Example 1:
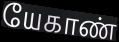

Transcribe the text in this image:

யேகாண்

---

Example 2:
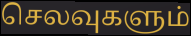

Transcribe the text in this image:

செலவுகளும்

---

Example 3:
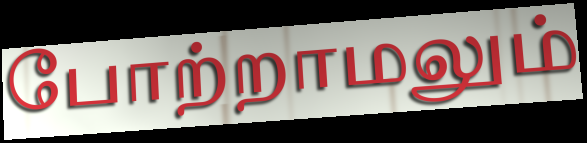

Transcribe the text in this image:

போற்றாமலும்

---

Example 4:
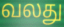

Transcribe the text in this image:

வலது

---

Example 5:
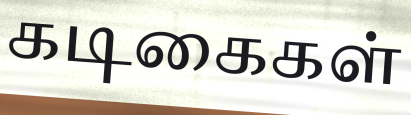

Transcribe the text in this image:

கடிகைகள்